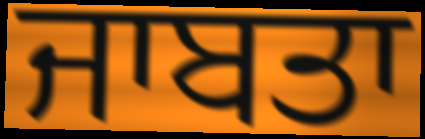
ਜਾਬਤਾ